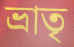
ভ্ৰাতৃ